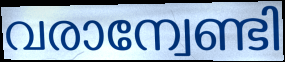
വരാന്വേണ്ടി